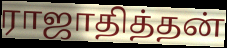
ராஜாதித்தன்